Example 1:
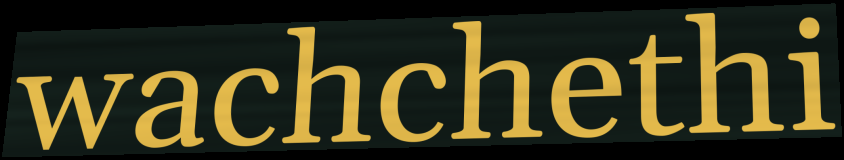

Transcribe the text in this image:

wachchethi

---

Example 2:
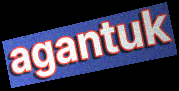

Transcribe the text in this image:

agantuk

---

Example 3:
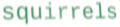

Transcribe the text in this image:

squirrels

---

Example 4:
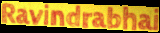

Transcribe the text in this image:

Ravindrabhai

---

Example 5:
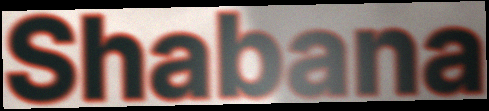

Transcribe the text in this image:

Shabana